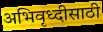
अभिवृध्दीसाठी